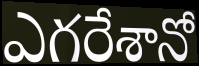
ఎగరేశానో